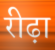
रीढ़ा